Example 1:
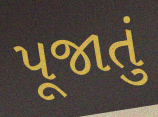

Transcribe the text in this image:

પૂજાતું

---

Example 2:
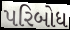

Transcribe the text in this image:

પરિબોધ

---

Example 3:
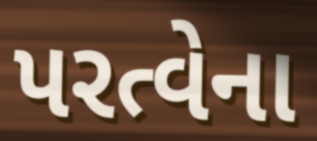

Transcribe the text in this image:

પરત્વેના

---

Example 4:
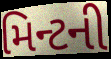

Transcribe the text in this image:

મિન્ટની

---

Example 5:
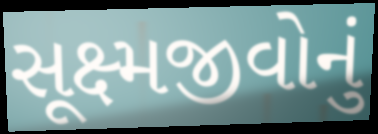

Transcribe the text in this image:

સૂક્ષ્મજીવોનું